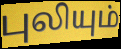
புலியும்